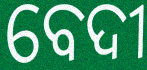
ବେଦୀ